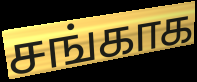
சங்காக